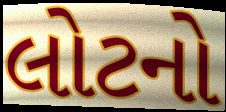
લોટનો